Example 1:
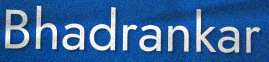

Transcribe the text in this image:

Bhadrankar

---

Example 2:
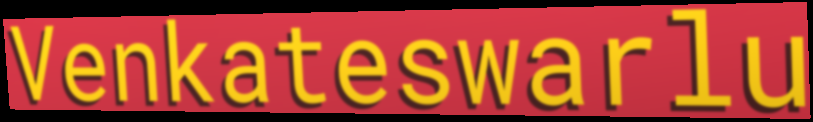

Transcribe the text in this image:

Venkateswarlu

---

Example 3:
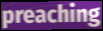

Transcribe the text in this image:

preaching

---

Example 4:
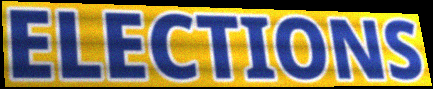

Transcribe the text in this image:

ELECTIONS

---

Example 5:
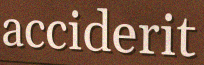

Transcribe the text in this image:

acciderit